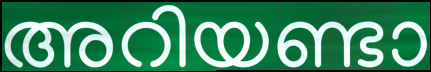
അറിയണ്ടാ